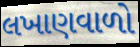
લખાણવાળો